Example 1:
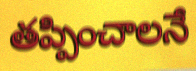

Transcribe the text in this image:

తప్పించాలనే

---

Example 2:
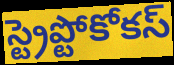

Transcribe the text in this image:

స్ట్రెప్టోకోకస్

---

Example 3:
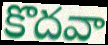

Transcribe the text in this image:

కొదవా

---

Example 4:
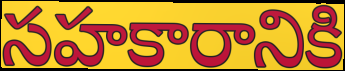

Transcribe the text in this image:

సహకారానికి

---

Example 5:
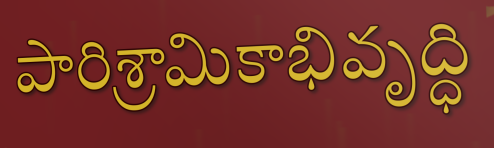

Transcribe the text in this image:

పారిశ్రామికాభివృద్ధి